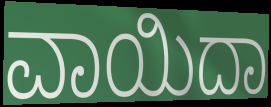
ವಾಯಿದಾ